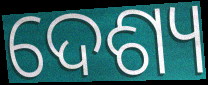
ଦେଶ୍ୟ